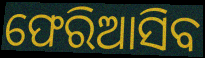
ଫେରିଆସିବ